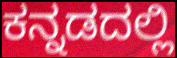
ಕನ್ನಡದಲ್ಲಿ